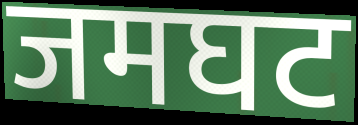
जमघट